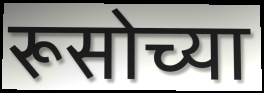
रूसोच्या